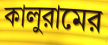
কালুরামের